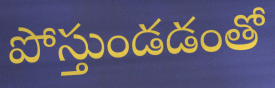
పోస్తుండడంతో